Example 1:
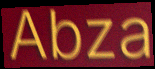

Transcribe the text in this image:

Abza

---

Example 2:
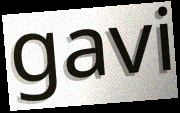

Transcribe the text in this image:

gavi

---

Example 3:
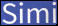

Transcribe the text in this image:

Simi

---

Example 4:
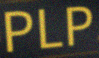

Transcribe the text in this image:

PLP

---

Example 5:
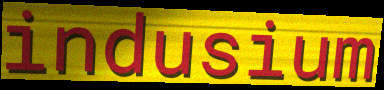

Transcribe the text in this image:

indusium